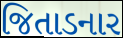
જિતાડનાર